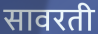
सावरती